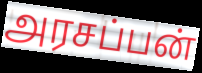
அரசப்பன்